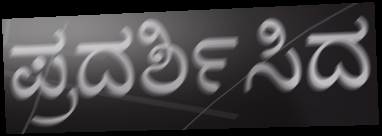
ಪ್ರದರ್ಶಿಸಿದ